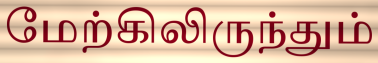
மேற்கிலிருந்தும்